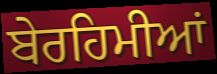
ਬੇਰਹਿਮੀਆਂ